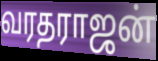
வரதராஜன்